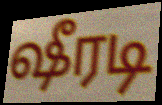
ஷீரடி